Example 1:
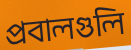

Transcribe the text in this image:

প্রবালগুলি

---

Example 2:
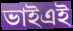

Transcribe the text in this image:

ভাইএই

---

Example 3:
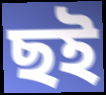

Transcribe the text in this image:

ছই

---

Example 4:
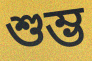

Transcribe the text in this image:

শুম্ভ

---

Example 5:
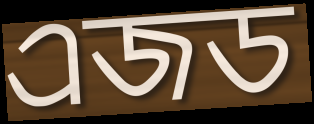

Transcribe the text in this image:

এজড